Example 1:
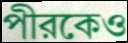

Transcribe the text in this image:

পীরকেও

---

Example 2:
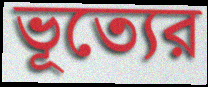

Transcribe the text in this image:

ভূত্যের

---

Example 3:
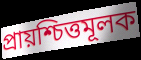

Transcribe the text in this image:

প্রায়শ্চিত্তমূলক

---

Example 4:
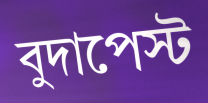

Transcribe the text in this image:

বুদাপেস্ট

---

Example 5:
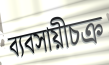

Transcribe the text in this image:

ব্যবসায়ীচক্র